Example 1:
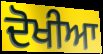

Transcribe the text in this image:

ਦੋਖੀਆ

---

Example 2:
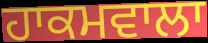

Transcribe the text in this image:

ਹਾਕਮਵਾਲਾ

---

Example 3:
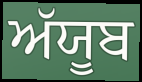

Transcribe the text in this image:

ਅੱਯੂਬ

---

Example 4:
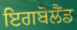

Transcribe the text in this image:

ਇਗਬੋਲੈਂਡ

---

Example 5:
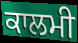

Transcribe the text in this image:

ਕਾਲਮੀ